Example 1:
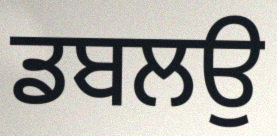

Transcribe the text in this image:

ਡਬਲਉ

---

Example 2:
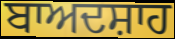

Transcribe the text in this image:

ਬਾਅਦਸ਼ਾਹ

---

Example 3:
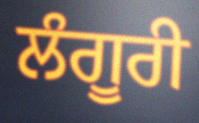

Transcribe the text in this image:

ਲੰਗੂਰੀ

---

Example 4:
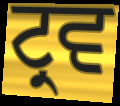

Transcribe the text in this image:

ਟ੍ਰਵ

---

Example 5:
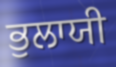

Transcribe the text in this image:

ਭੁਲਾਯੀ